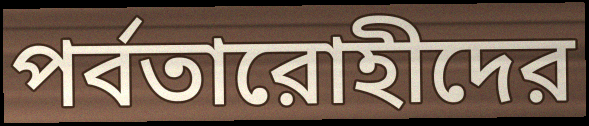
পর্বতারোহীদের